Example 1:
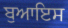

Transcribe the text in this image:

ਬੁਆਇਸ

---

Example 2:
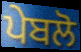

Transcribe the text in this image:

ਪੇਬਲੋ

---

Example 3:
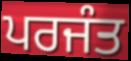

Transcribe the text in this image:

ਪਰਜੰਤ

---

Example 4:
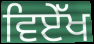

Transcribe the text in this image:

ਵਿਏੱਖ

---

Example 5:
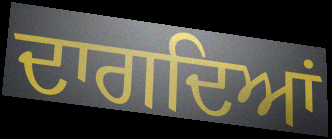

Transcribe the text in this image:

ਦਾਗਦਿਆਂ